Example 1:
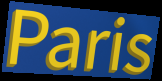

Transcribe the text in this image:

Paris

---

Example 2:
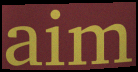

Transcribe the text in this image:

aim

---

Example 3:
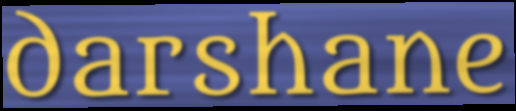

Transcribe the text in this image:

darshane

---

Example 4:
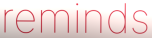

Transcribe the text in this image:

reminds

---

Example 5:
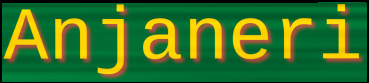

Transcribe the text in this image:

Anjaneri